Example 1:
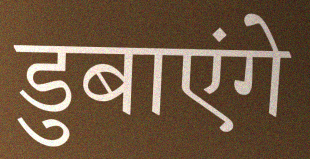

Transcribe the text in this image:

डुबाएंगे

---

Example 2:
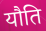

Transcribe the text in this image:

यौति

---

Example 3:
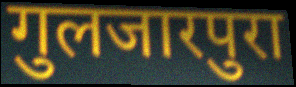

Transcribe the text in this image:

गुलजारपुरा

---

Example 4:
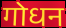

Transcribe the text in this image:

गोधन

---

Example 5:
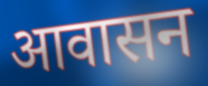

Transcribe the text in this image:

आवासन